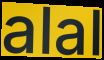
alal